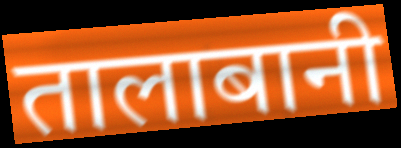
तालाबानी